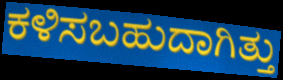
ಕಳಿಸಬಹುದಾಗಿತ್ತು